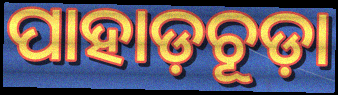
ପାହାଡ଼ଚୂଡ଼ା